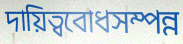
দায়িত্ববোধসম্পন্ন